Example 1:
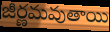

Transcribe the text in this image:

జీర్ణమవుతాయి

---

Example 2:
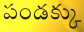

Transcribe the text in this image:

పండక్కు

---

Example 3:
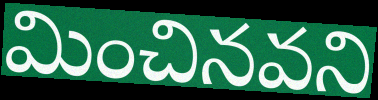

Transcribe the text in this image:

మించినవని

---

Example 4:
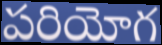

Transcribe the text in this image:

పరియోగ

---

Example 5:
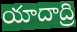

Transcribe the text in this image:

యాదాద్రి